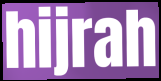
hijrah